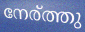
നേര്ത്തു